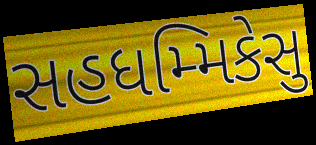
સહધમ્મિકેસુ